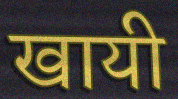
खायी